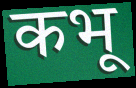
कभू